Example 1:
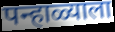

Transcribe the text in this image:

पन्हाळ्याला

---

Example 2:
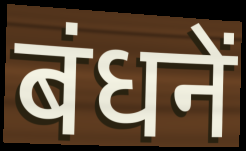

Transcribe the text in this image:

बंधनें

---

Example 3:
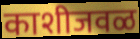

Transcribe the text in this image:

काशीजवळ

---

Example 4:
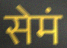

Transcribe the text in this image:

सेमं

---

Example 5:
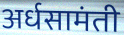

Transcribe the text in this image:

अर्धसामंती